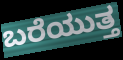
ಬರೆಯುತ್ತ